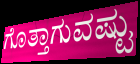
ಗೊತ್ತಾಗುವಷ್ಟು